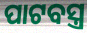
ପାଟବସ୍ତ୍ର